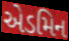
એડમિન